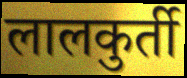
लालकुर्ती